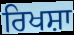
ਰਿਖਸ਼ਾ